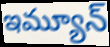
ఇమ్యూన్